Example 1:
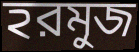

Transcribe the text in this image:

হরমুজ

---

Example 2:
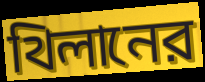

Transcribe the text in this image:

থিলানের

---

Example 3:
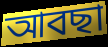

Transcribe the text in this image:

আবছা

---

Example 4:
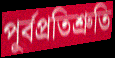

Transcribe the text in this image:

পূর্বপ্রতিশ্রুতি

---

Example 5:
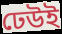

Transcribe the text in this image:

ঢেউই